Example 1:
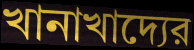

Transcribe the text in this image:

খানাখাদ্যের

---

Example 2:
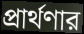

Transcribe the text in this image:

প্রার্থণার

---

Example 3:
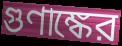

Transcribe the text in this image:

গুণাঙ্কের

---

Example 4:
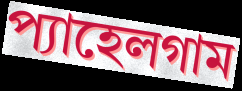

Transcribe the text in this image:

প্যাহেলগাম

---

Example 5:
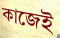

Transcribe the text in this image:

কাজেই